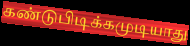
கண்டுபிடிக்கமுடியாது